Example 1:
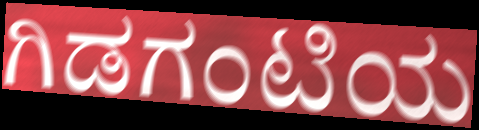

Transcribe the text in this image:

ಗಿಡಗಂಟಿಯ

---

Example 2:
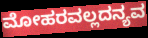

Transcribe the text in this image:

ಮೋಹರವಲ್ಲದನ್ಯವ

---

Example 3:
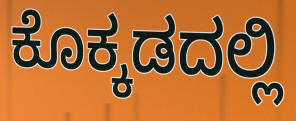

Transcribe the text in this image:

ಕೊಕ್ಕಡದಲ್ಲಿ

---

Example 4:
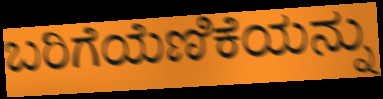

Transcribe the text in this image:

ಬರಿಗೆಯೆಣಿಕೆಯನ್ನು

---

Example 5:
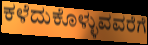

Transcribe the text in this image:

ಕಳೆದುಕೊಳ್ಳುವವರೆಗೆ